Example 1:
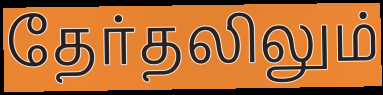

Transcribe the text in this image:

தேர்தலிலும்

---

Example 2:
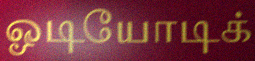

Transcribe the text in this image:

ஓடியோடிக்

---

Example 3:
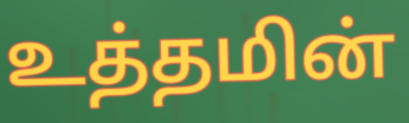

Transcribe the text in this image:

உத்தமின்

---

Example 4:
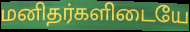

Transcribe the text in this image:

மனிதர்களிடையே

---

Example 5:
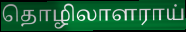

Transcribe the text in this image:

தொழிலாளராய்